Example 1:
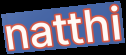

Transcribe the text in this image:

natthi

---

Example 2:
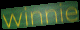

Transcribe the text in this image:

winnie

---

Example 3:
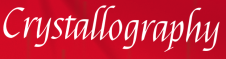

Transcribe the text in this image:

Crystallography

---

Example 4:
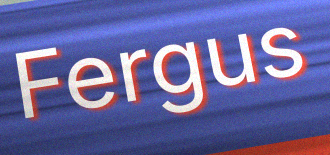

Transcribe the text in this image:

Fergus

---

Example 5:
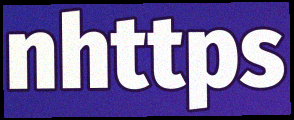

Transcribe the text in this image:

nhttps